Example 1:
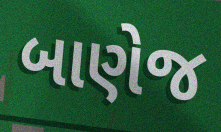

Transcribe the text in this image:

બાણેજ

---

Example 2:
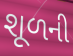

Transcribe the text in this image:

શૂળની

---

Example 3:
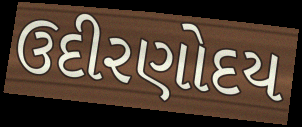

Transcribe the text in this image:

ઉદીરણોદય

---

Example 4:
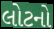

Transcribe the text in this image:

લોટનો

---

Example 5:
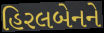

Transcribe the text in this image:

હિરલબેનને